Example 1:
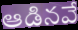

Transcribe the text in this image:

ఆడినవే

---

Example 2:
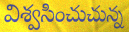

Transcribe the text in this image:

విశ్వసించుచున్న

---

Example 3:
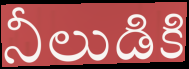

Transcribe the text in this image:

నీలుడికి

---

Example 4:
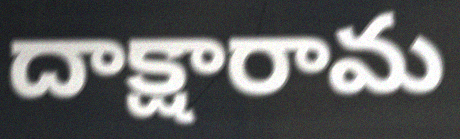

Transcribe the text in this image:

దాక్షారామ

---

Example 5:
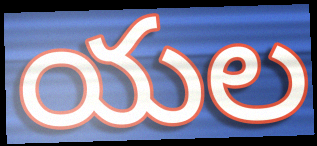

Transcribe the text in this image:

యల